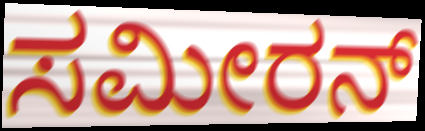
ಸಮೀರನ್